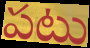
పటు